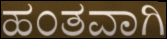
ಹಂತವಾಗಿ